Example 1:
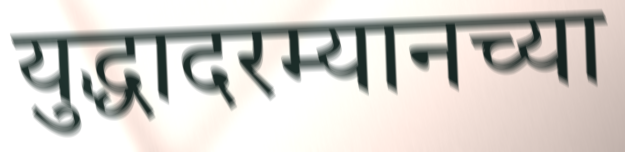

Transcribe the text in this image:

युद्धादरम्यानच्या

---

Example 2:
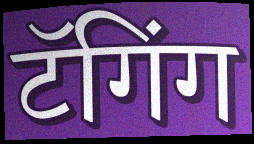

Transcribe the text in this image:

टॅगिंग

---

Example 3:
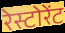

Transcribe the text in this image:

रेस्टोरेंट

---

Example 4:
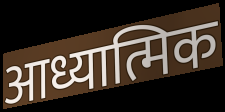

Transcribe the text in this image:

आध्यात्मिक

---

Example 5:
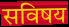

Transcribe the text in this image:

सविषय